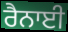
ਰੈਨਾਈ